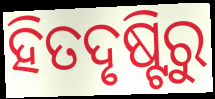
ହିତଦୃଷ୍ଟିରୁ